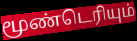
மூண்டெரியும்